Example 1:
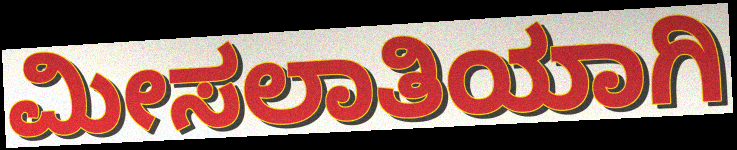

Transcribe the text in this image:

ಮೀಸಲಾತಿಯಾಗಿ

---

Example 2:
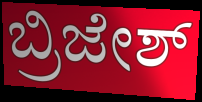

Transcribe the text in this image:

ಬ್ರಿಜೇಶ್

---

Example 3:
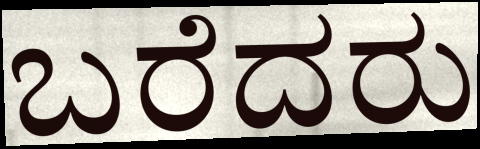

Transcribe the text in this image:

ಬರೆದರು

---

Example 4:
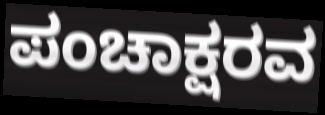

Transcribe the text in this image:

ಪಂಚಾಕ್ಷರವ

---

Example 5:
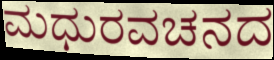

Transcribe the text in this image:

ಮಧುರವಚನದ